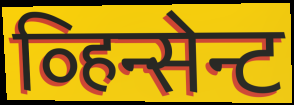
व्हिन्सेन्ट